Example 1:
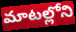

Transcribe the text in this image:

మాటల్లోని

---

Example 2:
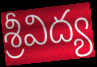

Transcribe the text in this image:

శ్రీవిద్య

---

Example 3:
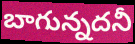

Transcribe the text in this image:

బాగున్నదనీ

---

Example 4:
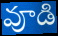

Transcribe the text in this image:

వూడి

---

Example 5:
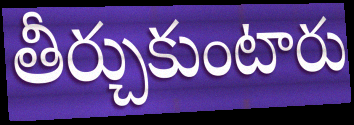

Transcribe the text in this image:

తీర్చుకుంటారు